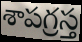
శాపగ్రస్త